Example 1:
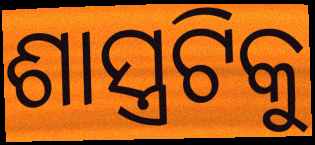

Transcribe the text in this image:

ଶାସ୍ତ୍ରଟିକୁ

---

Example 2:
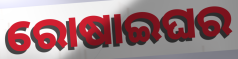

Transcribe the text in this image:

ରୋଷାଇଘର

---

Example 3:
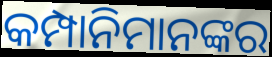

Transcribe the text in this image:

କମ୍ପାନିମାନଙ୍କର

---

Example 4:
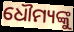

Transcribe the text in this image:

ଧୌମ୍ୟଙ୍କୁ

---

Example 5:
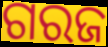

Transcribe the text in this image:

ଗରଜ